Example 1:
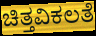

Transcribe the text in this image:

ಚಿತ್ತವಿಕಲತೆ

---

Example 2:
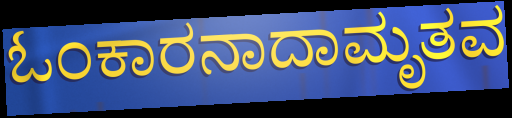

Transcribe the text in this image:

ಓಂಕಾರನಾದಾಮೃತವ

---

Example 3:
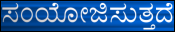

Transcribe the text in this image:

ಸಂಯೋಜಿಸುತ್ತದೆ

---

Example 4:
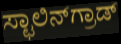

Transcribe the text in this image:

ಸ್ಟಾಲಿನ್‌ಗ್ರಾಡ್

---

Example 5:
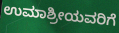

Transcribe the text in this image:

ಉಮಾಶ್ರೀಯವರಿಗೆ